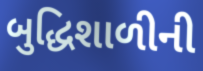
બુદ્ધિશાળીની